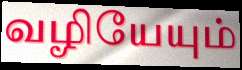
வழியேயும்